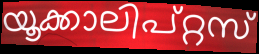
യൂക്കാലിപ്റ്റസ്